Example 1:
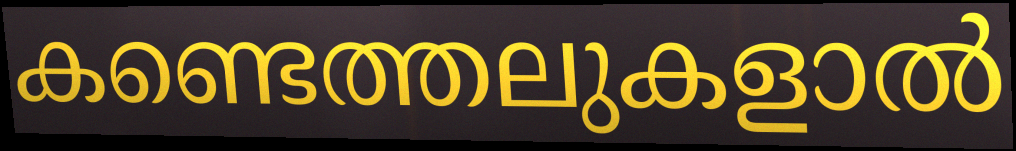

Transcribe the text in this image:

കണ്ടെത്തലുകളാൽ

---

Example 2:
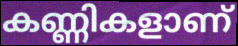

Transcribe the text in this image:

കണ്ണികളാണ്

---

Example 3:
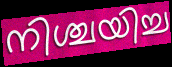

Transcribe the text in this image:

നിശ്ചയിച്ച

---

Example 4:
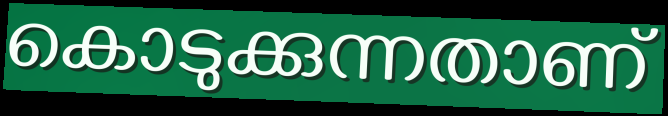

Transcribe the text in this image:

കൊടുക്കുന്നതാണ്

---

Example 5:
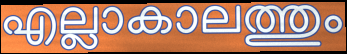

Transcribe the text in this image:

എല്ലാകാലത്തും